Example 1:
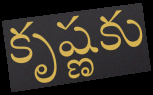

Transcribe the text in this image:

కృష్ణకు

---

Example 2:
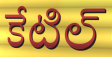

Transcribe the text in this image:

కేటిల్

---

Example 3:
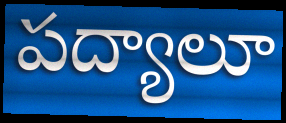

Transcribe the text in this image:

పద్యాలూ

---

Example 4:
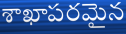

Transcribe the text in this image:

శాఖాపరమైన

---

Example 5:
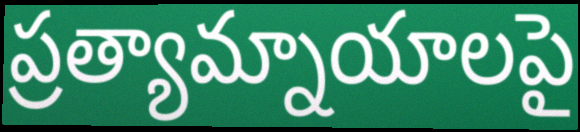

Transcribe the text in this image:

ప్రత్యామ్నాయాలపై